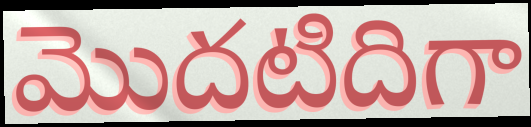
మొదటిదిగా